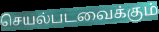
செயல்படவைக்கும்